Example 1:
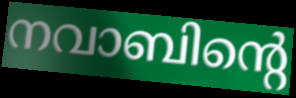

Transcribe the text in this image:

നവാബിന്റെ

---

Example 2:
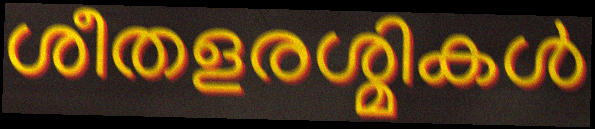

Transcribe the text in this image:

ശീതളരശ്മികൾ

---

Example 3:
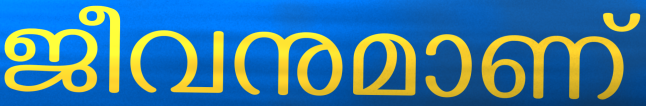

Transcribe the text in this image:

ജീവനുമാണ്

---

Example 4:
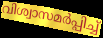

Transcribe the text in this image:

വിശ്വാസമർപ്പിച്ച്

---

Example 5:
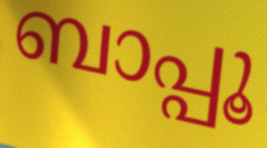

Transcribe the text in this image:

ബാപ്പൂ